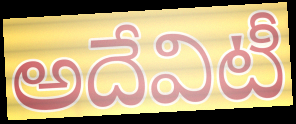
అదేవిటీ